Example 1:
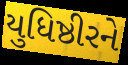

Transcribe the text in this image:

યુધિષ્ઠીરને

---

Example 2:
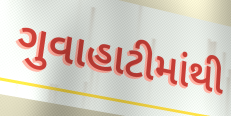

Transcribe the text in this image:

ગુવાહાટીમાંથી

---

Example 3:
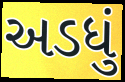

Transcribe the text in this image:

અડધું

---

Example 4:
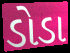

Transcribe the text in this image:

ડોડા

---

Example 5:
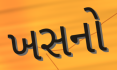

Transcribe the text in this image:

ખસનો